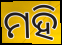
ମହି